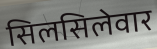
सिलसिलेवार